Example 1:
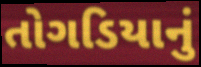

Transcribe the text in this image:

તોગડિયાનું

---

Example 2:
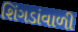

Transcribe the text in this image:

શિંગડાંવાળી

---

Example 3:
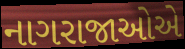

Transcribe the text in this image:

નાગરાજાઓએ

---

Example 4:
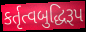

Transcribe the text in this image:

કર્તૃત્વબુદ્ધિરૂપ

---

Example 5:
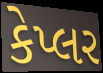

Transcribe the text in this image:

કેપ્લર